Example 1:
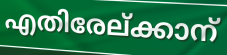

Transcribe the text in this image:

എതിരേല്ക്കാന്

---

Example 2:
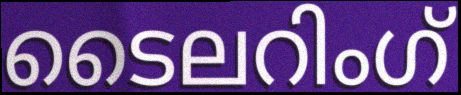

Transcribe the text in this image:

ടൈലറിംഗ്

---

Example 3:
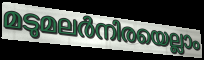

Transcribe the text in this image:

മടുമലർനിരയെല്ലാം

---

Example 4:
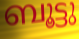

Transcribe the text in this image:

ബൂട്ടു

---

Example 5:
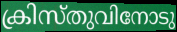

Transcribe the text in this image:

ക്രിസ്തുവിനോടു